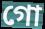
গো